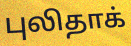
புலிதாக்